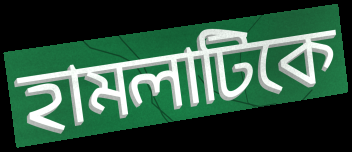
হামলাটিকে